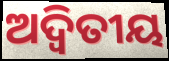
ଅଦ୍ବିତୀୟ